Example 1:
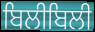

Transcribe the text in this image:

ਬਿਲੀਬਿਲੀ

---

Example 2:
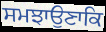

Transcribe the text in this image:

ਸਮਝਾਉਣਾਕਿ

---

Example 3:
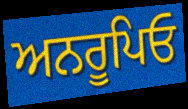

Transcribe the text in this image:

ਅਨਰੂਪਿਓ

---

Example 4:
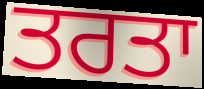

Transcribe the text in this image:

ਤਰਤਾ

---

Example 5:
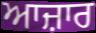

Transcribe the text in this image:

ਆਜ਼ਾਰ